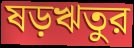
ষড়ঋতুর